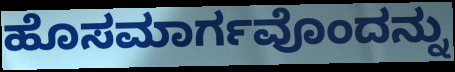
ಹೊಸಮಾರ್ಗವೊಂದನ್ನು